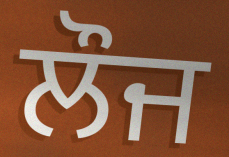
ਲੌਜ